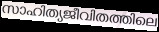
സാഹിത്യജീവിതത്തിലെ